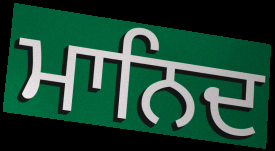
ਮਾਨਿਦ